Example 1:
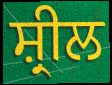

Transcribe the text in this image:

ਸ਼੍ਰੀਲ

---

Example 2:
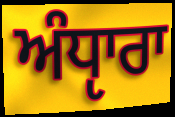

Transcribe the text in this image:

ਅੰਧੵਾਰਾ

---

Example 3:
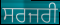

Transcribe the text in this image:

ਸਰਜਰੀ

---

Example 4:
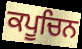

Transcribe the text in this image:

ਕਪੂਚਿਨ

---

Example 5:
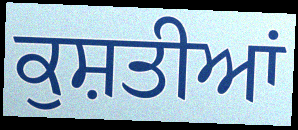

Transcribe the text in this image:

ਕੁਸ਼ਤੀਆਂ